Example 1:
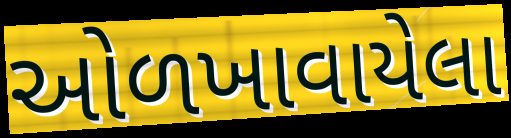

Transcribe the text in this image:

ઓળખાવાયેલા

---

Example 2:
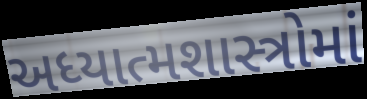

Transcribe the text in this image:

અધ્યાત્મશાસ્ત્રોમાં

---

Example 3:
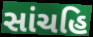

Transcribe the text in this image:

સાંચહિ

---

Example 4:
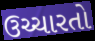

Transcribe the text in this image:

ઉચ્ચારતો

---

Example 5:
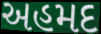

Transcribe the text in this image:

અહમદ